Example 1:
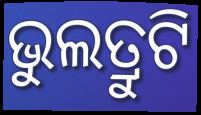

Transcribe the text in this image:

ଭୁଲତ୍ରୁଟି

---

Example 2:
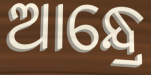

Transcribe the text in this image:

ଆନ୍ଧ୍ରେ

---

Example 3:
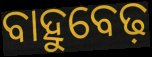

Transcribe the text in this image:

ବାହୁବେଢ଼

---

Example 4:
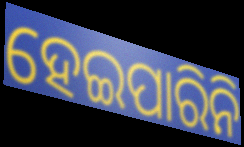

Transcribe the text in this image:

ହେଇପାରିନି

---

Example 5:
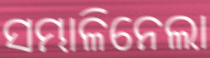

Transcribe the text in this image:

ସମ୍ଭାଳିନେଲା